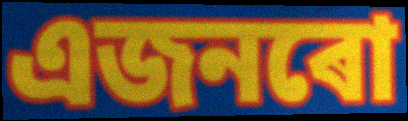
এজনৰো